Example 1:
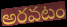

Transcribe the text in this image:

అరవటం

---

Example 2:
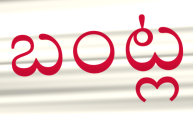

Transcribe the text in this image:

బంట్ల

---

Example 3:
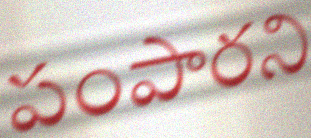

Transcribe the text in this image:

పంపారని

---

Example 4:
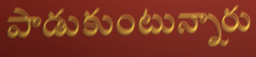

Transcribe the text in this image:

పాడుకుంటున్నారు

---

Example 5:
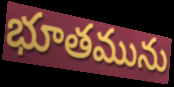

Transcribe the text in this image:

భూతమును